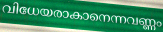
വിധേയരാകാനെന്നവണ്ണം